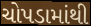
ચોપડામાંથી